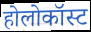
होलोकॉस्ट